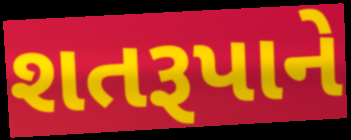
શતરૂપાને